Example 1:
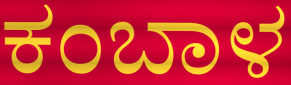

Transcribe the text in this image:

ಕಂಬಾಳ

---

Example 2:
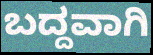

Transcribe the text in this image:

ಬದ್ದವಾಗಿ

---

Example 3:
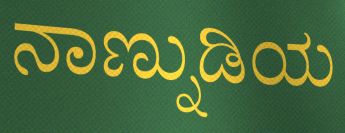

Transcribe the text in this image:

ನಾಣ್ನುಡಿಯ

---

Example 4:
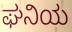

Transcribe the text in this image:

ಘನಿಯ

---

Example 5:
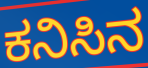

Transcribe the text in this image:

ಕನಿಸಿನ